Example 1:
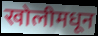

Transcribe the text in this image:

खोलीमधून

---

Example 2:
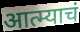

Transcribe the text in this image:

आत्म्याचं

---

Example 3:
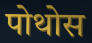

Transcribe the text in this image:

पोथोस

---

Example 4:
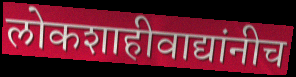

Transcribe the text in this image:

लोकशाहीवाद्यांनीच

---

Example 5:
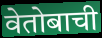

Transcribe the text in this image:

वेतोबाची